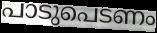
പാടുപെടണം